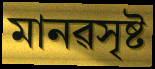
মানৱসৃষ্ট